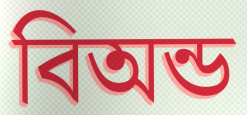
বিঅন্ড